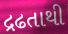
દ્રઢતાથી